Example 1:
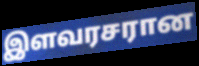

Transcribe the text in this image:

இளவரசரான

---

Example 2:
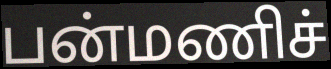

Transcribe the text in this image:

பன்மணிச்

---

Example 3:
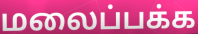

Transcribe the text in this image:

மலைப்பக்க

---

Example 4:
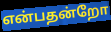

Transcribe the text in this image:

என்பதன்றோ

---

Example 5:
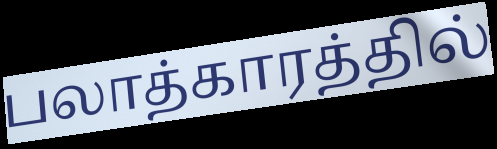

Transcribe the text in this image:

பலாத்காரத்தில்